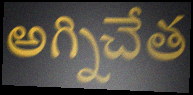
అగ్నిచేత